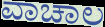
ವಾಚಾಲ